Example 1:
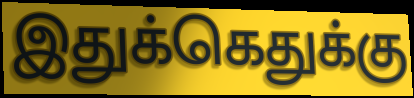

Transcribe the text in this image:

இதுக்கெதுக்கு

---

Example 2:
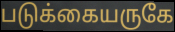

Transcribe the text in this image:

படுக்கையருகே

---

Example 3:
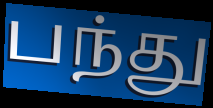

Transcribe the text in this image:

பந்து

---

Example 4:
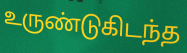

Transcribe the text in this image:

உருண்டுகிடந்த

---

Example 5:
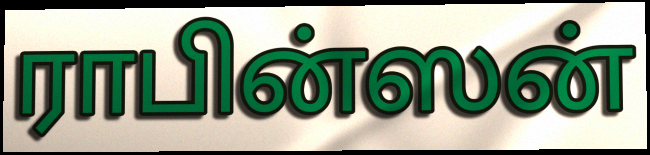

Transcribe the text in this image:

ராபின்ஸன்